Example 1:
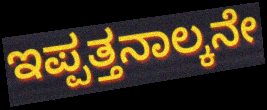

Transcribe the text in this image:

ಇಪ್ಪತ್ತನಾಲ್ಕನೇ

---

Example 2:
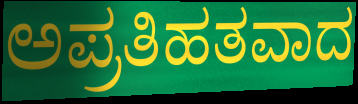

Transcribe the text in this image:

ಅಪ್ರತಿಹತವಾದ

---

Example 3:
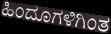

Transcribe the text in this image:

ಹಿಂದೂಗಳಿಗಿಂತ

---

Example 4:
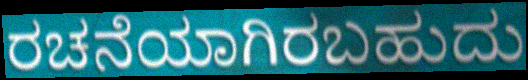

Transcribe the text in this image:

ರಚನೆಯಾಗಿರಬಹುದು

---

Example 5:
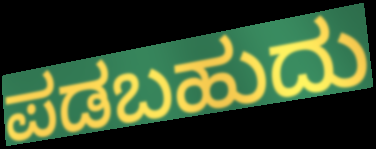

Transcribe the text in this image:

ಪಡಬಹುದು